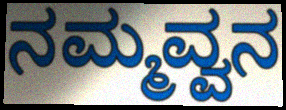
ನಮ್ಮವ್ವನ